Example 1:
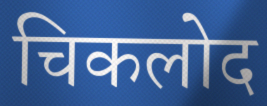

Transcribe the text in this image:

चिकलोद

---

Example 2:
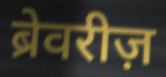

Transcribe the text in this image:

ब्रेवरीज़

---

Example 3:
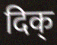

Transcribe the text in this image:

दिक्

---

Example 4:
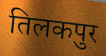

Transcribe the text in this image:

तिलकपुर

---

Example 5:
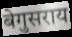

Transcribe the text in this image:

बेगुसराय